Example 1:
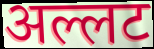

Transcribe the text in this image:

अल्लट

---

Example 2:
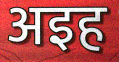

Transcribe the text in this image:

अइह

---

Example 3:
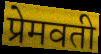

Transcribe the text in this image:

प्रेमवती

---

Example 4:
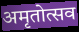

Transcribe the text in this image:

अमृतोत्सव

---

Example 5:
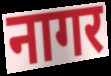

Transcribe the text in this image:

नागर